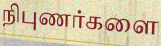
நிபுணர்களை